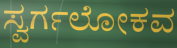
ಸ್ವರ್ಗಲೋಕವ